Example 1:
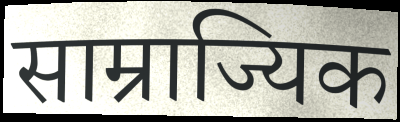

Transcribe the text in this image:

साम्राज्यिक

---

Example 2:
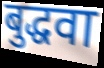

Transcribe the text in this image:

बुद्धवा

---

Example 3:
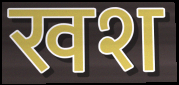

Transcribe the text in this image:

खश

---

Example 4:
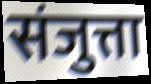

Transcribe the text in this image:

संजुत्ता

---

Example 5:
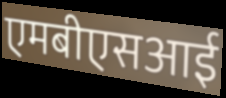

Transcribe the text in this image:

एमबीएसआई